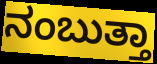
ನಂಬುತ್ತಾ